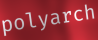
polyarch